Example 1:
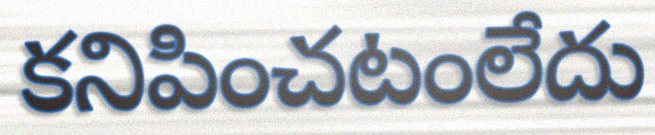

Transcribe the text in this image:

కనిపించటంలేదు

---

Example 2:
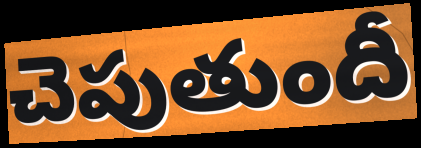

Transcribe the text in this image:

చెపుతుందీ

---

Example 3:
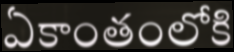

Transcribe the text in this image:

ఏకాంతంలోకి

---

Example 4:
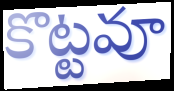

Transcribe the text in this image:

కొట్టవూ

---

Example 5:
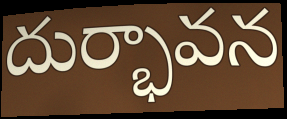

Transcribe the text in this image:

దుర్భావన